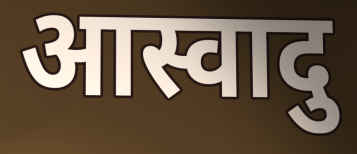
आस्वादु